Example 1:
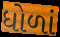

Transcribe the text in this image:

ધોળાં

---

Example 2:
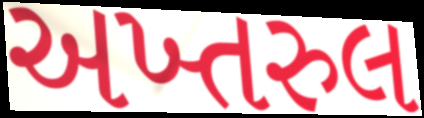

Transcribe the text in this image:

અખ્તરુલ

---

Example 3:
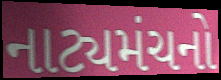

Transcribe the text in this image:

નાટ્યમંચનો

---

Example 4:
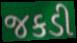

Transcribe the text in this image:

જકડી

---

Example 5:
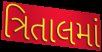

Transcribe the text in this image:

ત્રિતાલમાં